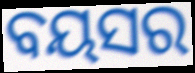
ବୟସର